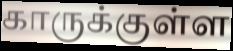
காருக்குள்ள